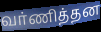
வர்ணித்தன